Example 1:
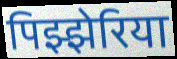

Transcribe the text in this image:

पिझ्झेरिया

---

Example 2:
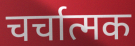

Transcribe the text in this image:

चर्चात्मक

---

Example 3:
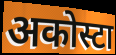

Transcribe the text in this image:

अकोस्टा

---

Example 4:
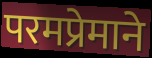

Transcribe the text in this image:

परमप्रेमाने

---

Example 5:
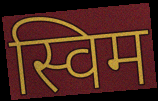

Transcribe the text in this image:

स्विम